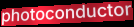
photoconductor